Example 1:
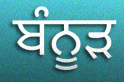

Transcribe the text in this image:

ਬੰਨੂੜ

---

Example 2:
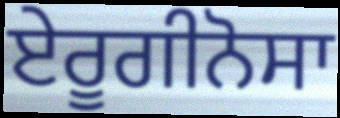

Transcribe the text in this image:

ਏਰੂਗੀਨੋਸਾ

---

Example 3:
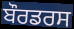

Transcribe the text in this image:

ਬੌਰਡਰਸ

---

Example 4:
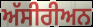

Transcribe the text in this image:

ਅੱਸੀਰੀਅਨ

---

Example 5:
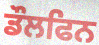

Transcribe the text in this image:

ਡੌਲਫਿਨ